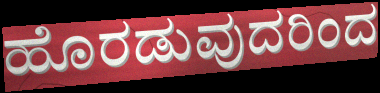
ಹೊರಡುವುದರಿಂದ